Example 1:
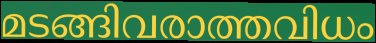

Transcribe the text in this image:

മടങ്ങിവരാത്തവിധം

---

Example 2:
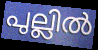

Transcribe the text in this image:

പുല്ലിൽ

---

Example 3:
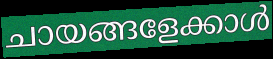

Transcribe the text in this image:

ചായങ്ങളേക്കാൾ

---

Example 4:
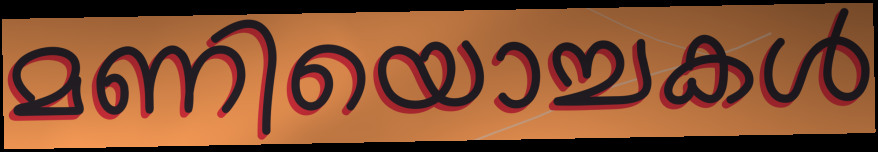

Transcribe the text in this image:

മണിയൊച്ചകൾ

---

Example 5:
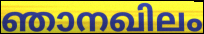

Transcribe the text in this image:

ഞാനഖിലം